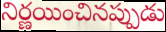
నిర్ణయించినప్పుడు